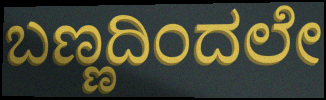
ಬಣ್ಣದಿಂದಲೇ